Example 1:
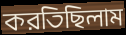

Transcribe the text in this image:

করতিছিলাম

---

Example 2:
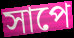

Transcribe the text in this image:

সাপে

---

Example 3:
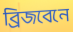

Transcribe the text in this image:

ব্রিজবেনে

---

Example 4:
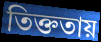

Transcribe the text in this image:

তিক্ততায়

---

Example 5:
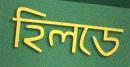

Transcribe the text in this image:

হিলডে